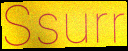
Ssurr